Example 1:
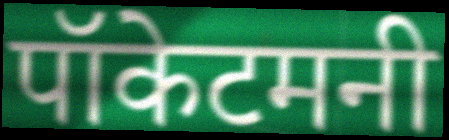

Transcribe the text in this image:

पॉकेटमनी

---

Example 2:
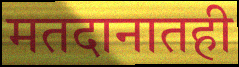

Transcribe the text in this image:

मतदानातही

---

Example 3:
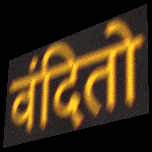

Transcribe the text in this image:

वंदितो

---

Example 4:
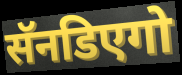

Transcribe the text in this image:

सॅनडिएगो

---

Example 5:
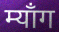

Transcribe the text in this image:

म्याँग